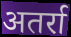
अतर्रा